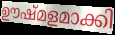
ഊഷ്മളമാക്കി